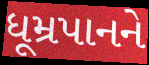
ધૂમ્રપાનને